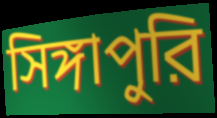
সিঙ্গাপুরি